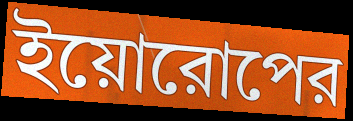
ইয়োরোপের